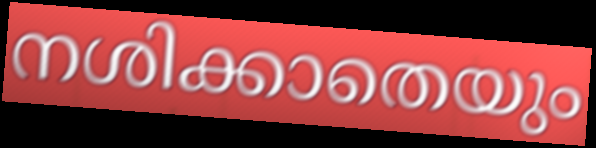
നശിക്കാതെയും